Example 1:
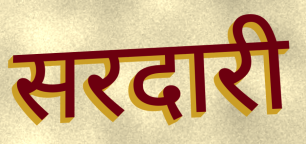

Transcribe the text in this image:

सरदारी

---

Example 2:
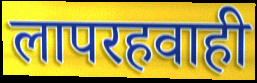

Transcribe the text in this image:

लापरहवाही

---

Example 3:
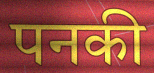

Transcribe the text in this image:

पनकी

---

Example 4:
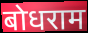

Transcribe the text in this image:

बोधराम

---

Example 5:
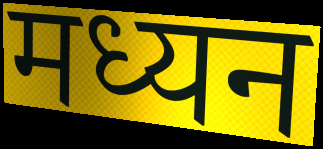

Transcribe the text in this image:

मध्यन